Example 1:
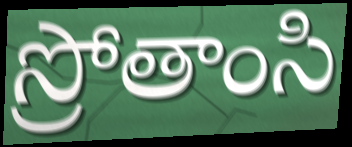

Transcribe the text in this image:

స్రోతాంసి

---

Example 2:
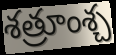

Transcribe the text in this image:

శత్రూంశ్చ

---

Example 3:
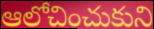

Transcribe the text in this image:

ఆలోచించుకుని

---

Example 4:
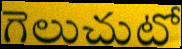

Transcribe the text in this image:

గెలుచుటో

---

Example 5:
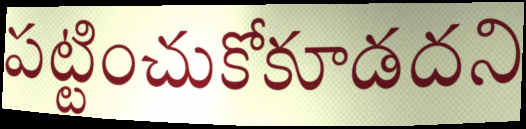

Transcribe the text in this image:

పట్టించుకోకూడదని